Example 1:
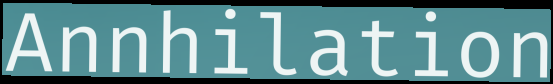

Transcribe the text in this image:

Annhilation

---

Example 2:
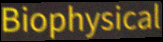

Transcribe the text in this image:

Biophysical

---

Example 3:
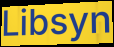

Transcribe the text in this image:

Libsyn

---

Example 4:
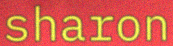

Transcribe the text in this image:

sharon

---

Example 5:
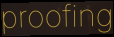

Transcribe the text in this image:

proofing